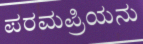
ಪರಮಪ್ರಿಯನು